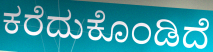
ಕರೆದುಕೊಂಡಿದೆ